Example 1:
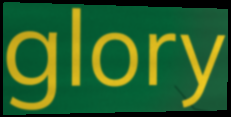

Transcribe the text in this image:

glory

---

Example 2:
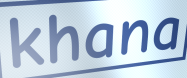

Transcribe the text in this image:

khana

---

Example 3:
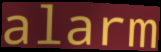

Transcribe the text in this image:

alarm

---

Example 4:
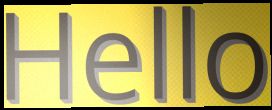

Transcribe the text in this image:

Hello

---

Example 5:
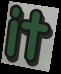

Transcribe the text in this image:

it